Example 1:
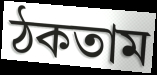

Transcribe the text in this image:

ঠকতাম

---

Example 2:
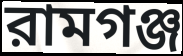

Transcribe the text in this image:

রামগঞ্জ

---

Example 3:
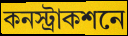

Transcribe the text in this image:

কনস্ট্রাকশনে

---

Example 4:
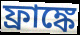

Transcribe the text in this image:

ফ্রাঙ্কে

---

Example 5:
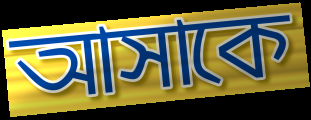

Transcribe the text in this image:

আসাকে